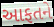
આફતને